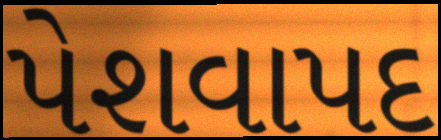
પેશવાપદ